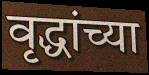
वृद्धांच्या